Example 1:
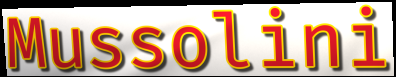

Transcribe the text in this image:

Mussolini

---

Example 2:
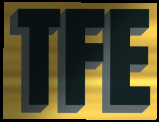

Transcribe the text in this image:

TFE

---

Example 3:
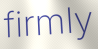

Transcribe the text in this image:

firmly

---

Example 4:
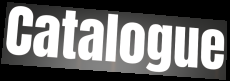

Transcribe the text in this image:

Catalogue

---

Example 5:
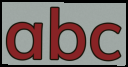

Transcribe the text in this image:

abc